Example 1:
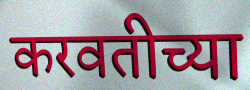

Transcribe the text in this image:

करवतीच्या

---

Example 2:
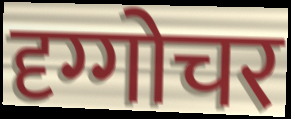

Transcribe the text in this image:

दृग्गोचर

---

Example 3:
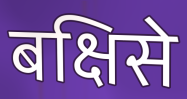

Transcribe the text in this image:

बक्षिसे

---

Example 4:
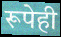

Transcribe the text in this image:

रूपेही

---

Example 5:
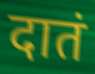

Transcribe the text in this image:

दातं